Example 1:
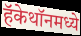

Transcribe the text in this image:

हॅकेथॉनमध्ये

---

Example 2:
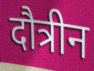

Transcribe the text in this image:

दौत्रीन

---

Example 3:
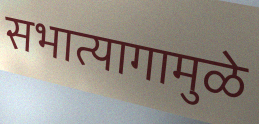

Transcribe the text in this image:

सभात्यागामुळे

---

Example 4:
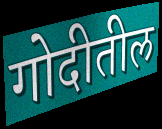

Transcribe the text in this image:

गोदीतील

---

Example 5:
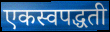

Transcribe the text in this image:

एकस्वपद्धती